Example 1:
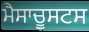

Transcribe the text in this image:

ਮੈਸਾਚੂਸਟਸ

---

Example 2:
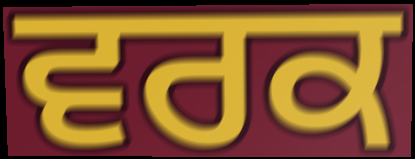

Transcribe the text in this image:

ਵਰਕ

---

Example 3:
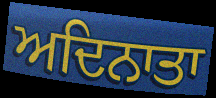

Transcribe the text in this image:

ਅਦਿਨਾਤਾ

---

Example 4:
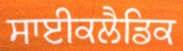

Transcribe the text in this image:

ਸਾਈਕਲੈਡਿਕ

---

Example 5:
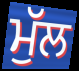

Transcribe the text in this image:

ਮੁੱਲ